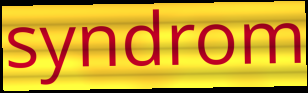
syndrom